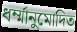
ধর্ম্মানুমোদিত